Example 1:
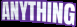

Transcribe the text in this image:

ANYTHING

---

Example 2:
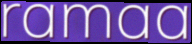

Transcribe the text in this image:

ramaa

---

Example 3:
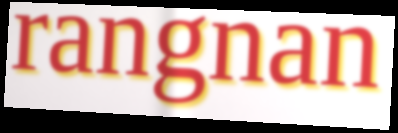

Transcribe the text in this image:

rangnan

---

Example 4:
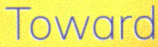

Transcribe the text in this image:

Toward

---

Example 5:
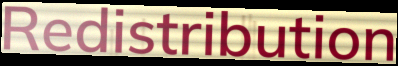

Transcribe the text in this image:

Redistribution